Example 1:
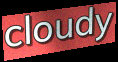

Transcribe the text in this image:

cloudy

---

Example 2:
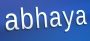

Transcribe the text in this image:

abhaya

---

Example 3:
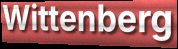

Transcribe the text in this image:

Wittenberg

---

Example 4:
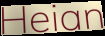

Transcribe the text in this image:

Heian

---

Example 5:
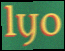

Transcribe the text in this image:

lyo